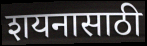
शयनासाठी